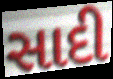
સાદી